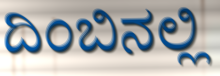
ದಿಂಬಿನಲ್ಲಿ